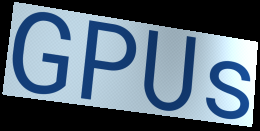
GPUs